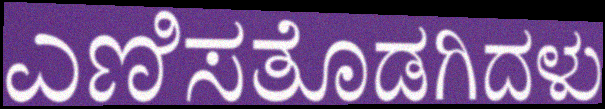
ಎಣಿಸತೊಡಗಿದಳು